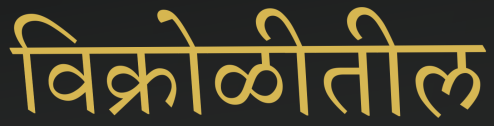
विक्रोळीतील